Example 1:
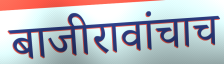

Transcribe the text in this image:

बाजीरावांचाच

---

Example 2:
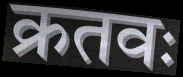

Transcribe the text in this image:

क्रतवः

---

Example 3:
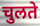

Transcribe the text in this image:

चुलते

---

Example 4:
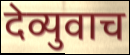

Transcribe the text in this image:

देव्युवाच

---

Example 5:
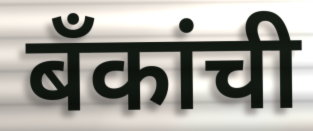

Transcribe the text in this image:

बँकांची